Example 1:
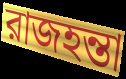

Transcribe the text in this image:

রাজহন্তা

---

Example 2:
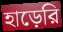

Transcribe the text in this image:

হাড়েরি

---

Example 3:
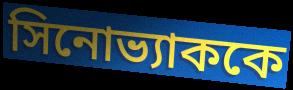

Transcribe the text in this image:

সিনোভ্যাককে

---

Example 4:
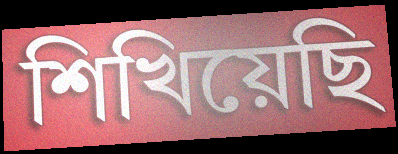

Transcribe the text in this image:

শিখিয়েছি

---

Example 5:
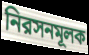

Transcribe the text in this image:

নিরসনমূলক